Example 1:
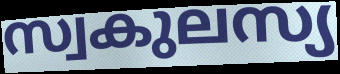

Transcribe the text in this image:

സ്വകുലസ്യ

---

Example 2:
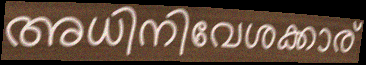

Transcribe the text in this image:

അധിനിവേശക്കാര്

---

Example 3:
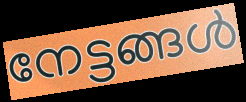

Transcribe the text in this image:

നേട്ടങ്ങൾ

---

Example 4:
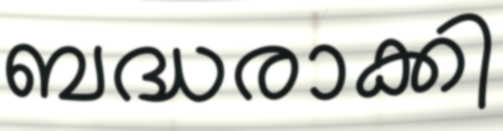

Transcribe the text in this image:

ബദ്ധരാക്കി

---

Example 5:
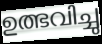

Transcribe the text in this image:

ഉത്ഭവിച്ചു